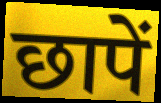
छापें